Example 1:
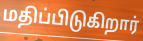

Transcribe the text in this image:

மதிப்பிடுகிறார்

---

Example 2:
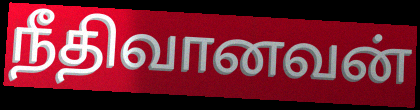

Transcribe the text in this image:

நீதிவானவன்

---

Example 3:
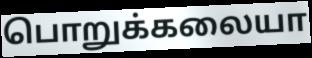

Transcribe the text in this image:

பொறுக்கலையா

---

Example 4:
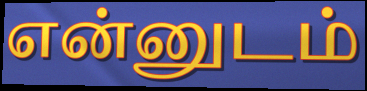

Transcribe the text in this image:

என்னுடம்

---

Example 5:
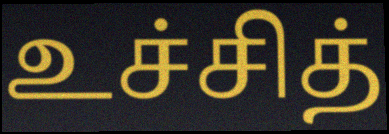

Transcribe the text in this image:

உச்சித்